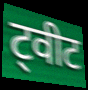
ट्‍वीट